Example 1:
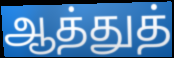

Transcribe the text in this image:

ஆத்துத்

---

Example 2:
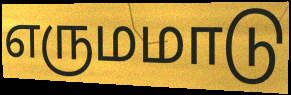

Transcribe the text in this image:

எருமமாடு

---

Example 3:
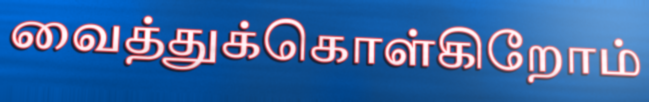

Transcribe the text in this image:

வைத்துக்கொள்கிறோம்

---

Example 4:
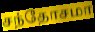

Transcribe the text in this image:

சந்தோசமா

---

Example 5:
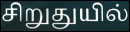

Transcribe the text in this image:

சிறுதுயில்